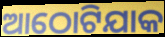
ଆଠୋଟିଯାକ